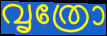
വൃത്രോ